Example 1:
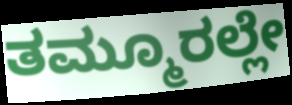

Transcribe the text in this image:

ತಮ್ಮೂರಲ್ಲೇ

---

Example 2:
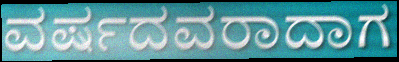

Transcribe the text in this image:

ವರ್ಷದವರಾದಾಗ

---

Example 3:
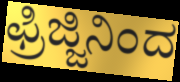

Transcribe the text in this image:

ಫ್ರಿಜ್ಜಿನಿಂದ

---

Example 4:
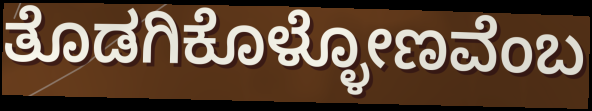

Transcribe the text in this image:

ತೊಡಗಿಕೊಳ್ಳೋಣವೆಂಬ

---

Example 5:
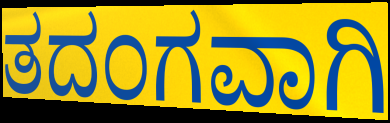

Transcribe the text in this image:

ತದಂಗವಾಗಿ